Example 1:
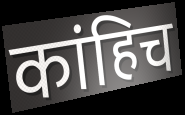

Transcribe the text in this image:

कांहिच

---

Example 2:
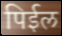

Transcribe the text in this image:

पिईल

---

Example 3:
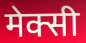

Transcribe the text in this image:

मेक्सी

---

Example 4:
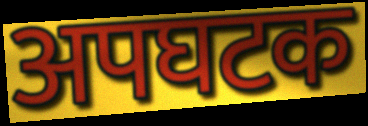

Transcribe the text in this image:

अपघटक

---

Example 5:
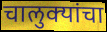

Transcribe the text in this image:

चालुक्यांचा